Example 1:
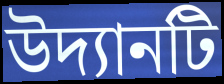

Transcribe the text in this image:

উদ্যানটি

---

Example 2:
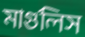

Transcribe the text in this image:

মার্গুলিস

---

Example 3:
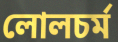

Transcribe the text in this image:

লোলচর্ম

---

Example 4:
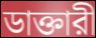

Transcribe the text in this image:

ডাক্তারী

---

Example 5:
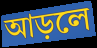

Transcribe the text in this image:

আড়লে